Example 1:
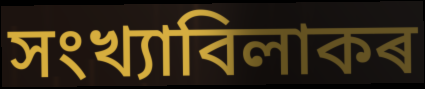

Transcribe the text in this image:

সংখ্যাবিলাকৰ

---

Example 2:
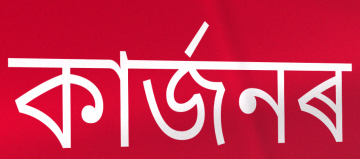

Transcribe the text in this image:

কাৰ্জনৰ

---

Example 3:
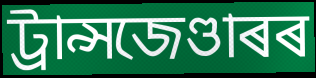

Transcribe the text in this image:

ট্ৰান্সজেণ্ডাৰৰ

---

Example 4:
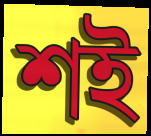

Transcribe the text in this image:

শই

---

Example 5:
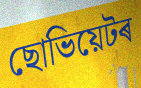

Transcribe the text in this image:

ছোভিয়েটৰ